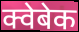
क्वेबेक